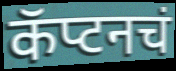
कॅप्टनचं